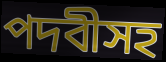
পদবীসহ